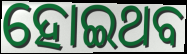
ହୋଇଥବ